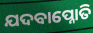
ଯଦବାପ୍ନୋତି